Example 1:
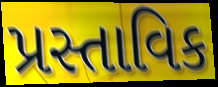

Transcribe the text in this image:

પ્રસ્તાવિક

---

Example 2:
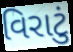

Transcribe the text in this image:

વિરાટું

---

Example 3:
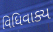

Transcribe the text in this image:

વિધિવાક્ય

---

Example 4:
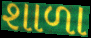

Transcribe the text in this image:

શાળા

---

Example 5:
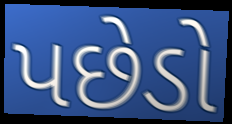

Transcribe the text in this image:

પછેડો